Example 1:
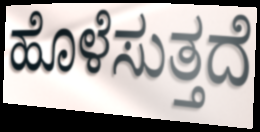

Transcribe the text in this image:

ಹೊಳೆಸುತ್ತದೆ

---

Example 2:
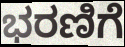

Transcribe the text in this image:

ಭರಣಿಗೆ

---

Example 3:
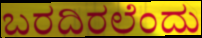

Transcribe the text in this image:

ಬರದಿರಲೆಂದು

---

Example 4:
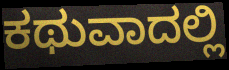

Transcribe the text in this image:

ಕಥುವಾದಲ್ಲಿ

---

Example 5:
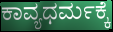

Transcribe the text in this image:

ಕಾವ್ಯಧರ್ಮಕ್ಕೆ